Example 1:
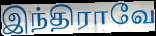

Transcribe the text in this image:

இந்திராவே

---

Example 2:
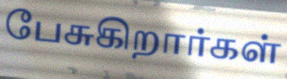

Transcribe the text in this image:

பேசுகிறார்கள்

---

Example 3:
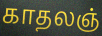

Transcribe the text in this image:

காதலஞ்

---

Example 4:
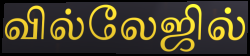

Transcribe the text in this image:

வில்லேஜில்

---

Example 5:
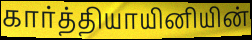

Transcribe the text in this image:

கார்த்தியாயினியின்